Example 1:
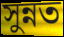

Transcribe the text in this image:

সুন্নত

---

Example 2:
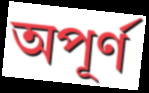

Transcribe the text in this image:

অপূর্ণ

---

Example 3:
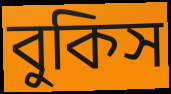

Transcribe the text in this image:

বুকিস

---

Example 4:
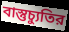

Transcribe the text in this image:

বাস্তুচ্যুতির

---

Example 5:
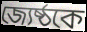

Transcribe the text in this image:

জ্যেষ্ঠকে